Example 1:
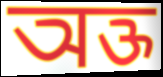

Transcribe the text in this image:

অক্ত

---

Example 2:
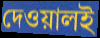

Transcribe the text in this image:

দেওয়ালই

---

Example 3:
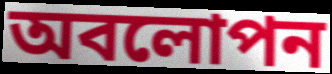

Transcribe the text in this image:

অবলোপন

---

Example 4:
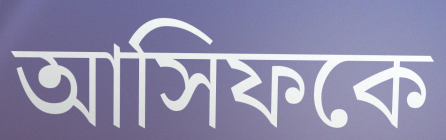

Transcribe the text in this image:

আসিফকে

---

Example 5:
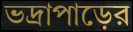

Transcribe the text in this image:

ভদ্রাপাড়ের